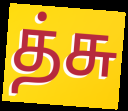
த்சு